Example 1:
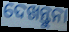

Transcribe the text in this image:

ଦେଖନ୍ତୁନା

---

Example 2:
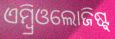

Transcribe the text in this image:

ଏମ୍ବ୍ରିଓଲୋଜିଷ୍ଟ୍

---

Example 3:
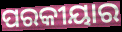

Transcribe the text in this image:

ପରକୀୟାର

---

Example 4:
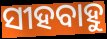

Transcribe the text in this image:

ସୀହବାହୁ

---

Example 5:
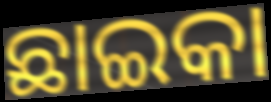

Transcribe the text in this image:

ଛାଇକା